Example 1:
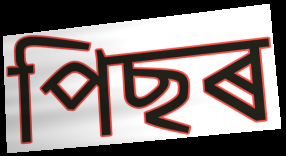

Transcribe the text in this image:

পিছৰ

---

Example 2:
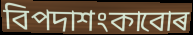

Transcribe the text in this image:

বিপদাশংকাবোৰ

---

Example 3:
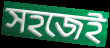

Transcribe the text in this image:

সহজেই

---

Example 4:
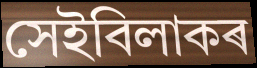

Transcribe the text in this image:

সেইবিলাকৰ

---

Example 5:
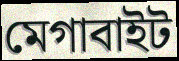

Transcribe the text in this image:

মেগাবাইট